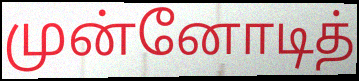
முன்னோடித்